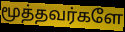
மூத்தவர்களே